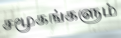
சமூகங்களும்